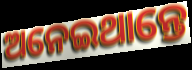
ଅନେଇଥାନ୍ତେ